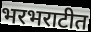
भरभराटीत